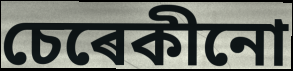
চেৰেকীনো